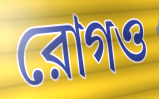
রোগও